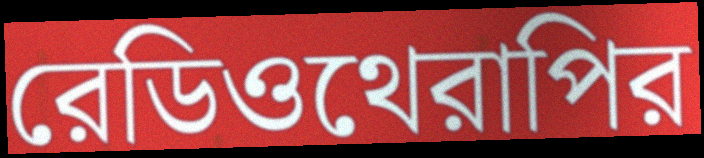
রেডিওথেরাপির